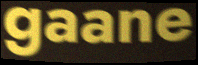
gaane